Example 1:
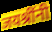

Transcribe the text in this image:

जयश्रींनी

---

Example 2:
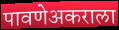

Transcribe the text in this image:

पावणेअकराला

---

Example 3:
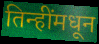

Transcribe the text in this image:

तिन्हींमधून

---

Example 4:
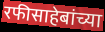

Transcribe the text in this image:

रफीसाहेबांच्या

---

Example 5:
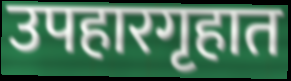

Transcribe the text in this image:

उपहारगृहात